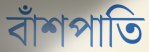
বাঁশপাতি